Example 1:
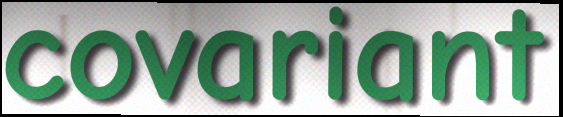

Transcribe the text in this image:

covariant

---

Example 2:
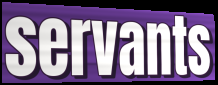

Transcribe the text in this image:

servants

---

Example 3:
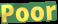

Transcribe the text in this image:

Poor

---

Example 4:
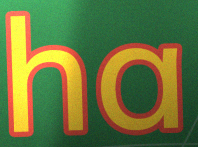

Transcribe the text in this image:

ha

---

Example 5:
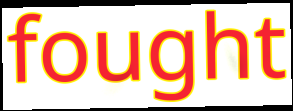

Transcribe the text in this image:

fought